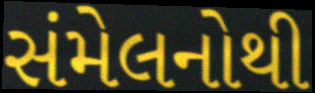
સંમેલનોથી